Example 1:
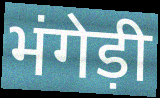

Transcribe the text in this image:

भंगेड़ी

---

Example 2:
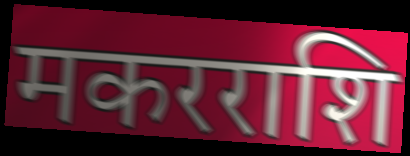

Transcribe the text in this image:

मकरराशि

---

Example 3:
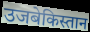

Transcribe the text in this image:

उजबेकिस्तान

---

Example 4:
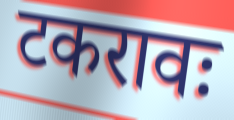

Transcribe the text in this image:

टकरावः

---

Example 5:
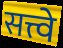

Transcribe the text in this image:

सत्त्वे